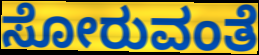
ಸೋರುವಂತೆ